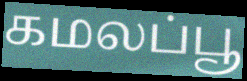
கமலப்பூ